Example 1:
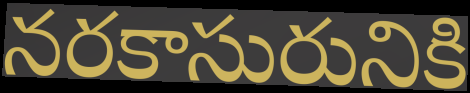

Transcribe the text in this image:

నరకాసురునికి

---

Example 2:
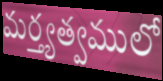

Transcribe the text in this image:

మర్త్యత్వములో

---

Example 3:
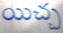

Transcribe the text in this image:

యిచ్చ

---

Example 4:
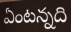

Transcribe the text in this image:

ఏంటన్నది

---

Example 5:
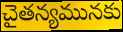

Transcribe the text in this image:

చైతన్యమునకు